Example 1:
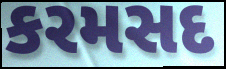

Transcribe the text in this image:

કરમસદ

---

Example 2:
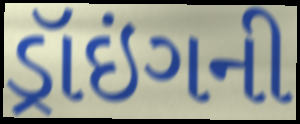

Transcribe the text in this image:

ડ્રૉઇંગની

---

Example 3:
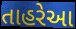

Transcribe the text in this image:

તાહરેઆ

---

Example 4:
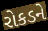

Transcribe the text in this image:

રોકડને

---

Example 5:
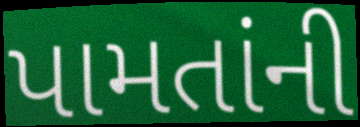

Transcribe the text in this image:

પામતાંની